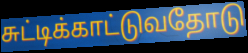
சுட்டிக்காட்டுவதோடு